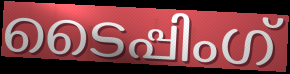
ടൈപ്പിംഗ്